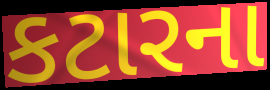
કટારના